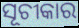
ସୂଚୀକାର